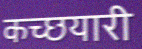
कच्छयारी